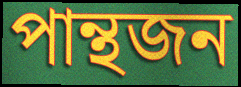
পান্থজন